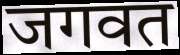
जगवत